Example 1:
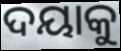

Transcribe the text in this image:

ଦୟାକୁ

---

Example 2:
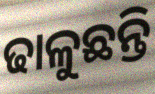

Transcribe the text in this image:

ଢାଳୁଛନ୍ତି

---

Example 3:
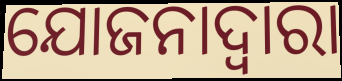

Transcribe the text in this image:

ଯୋଜନାଦ୍ବାରା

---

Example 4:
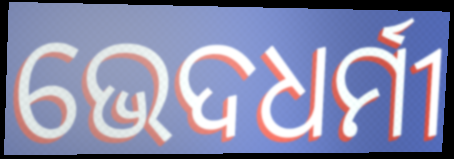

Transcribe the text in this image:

ଭେଦଧର୍ମୀ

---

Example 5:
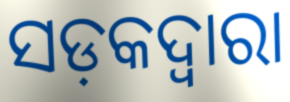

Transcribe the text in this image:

ସଡ଼କଦ୍ୱାରା